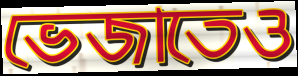
ভেজাতেও